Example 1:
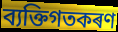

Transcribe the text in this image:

ব্যক্তিগতকৰণ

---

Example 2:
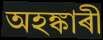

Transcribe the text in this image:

অহঙ্কাৰী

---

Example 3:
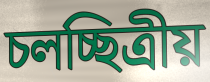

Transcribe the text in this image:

চলচ্ছিত্ৰীয়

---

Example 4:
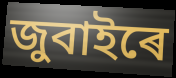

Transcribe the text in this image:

জুবাইৰে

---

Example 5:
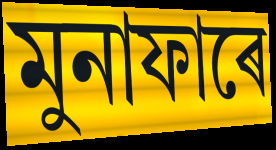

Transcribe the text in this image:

মুনাফাৰে